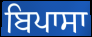
ਬਿਪਾਸਾ